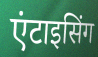
एंटाइसिंग